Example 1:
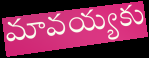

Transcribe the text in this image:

మావయ్యకు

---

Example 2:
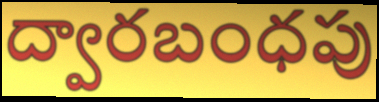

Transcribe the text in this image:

ద్వారబంధపు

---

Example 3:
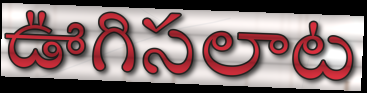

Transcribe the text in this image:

ఊగిసలాట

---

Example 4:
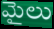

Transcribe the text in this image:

మైలు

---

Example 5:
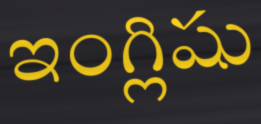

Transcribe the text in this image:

ఇంగ్లిషు